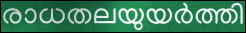
രാധതലയുയർത്തി